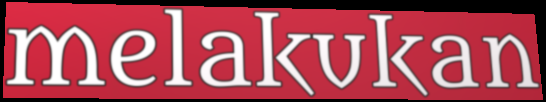
melakukan